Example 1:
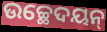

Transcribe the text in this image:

ଉଚ୍ଛେଦୟନ୍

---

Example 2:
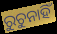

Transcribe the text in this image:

ରୁଚୁନାହିଁ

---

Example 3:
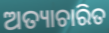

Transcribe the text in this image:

ଅତ୍ୟାଚାରିତ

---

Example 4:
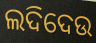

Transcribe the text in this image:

ଲଦିଦେଉ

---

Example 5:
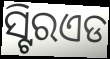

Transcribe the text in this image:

ସ୍ଟିରଏଡ